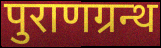
पुराणग्रन्थ